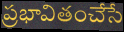
ప్రభావితంచేసే